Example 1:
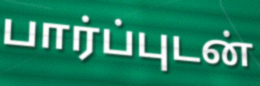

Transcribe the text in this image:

பார்ப்புடன்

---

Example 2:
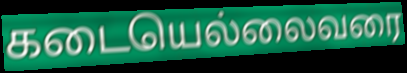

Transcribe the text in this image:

கடையெல்லைவரை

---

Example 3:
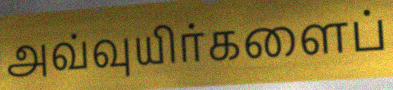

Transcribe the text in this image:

அவ்வுயிர்களைப்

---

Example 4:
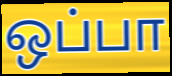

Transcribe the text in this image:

ஒப்பா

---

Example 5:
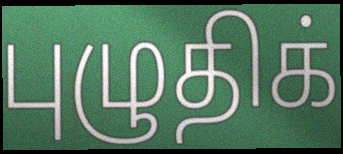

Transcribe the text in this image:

புழுதிக்